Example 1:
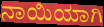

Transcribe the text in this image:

ನಾಯಿಯಾಗಿ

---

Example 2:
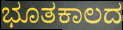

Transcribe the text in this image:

ಭೂತಕಾಲದ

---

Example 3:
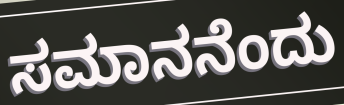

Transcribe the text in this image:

ಸಮಾನನೆಂದು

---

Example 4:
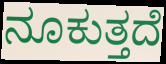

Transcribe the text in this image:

ನೂಕುತ್ತದೆ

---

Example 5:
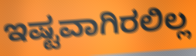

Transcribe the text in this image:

ಇಷ್ಟವಾಗಿರಲಿಲ್ಲ